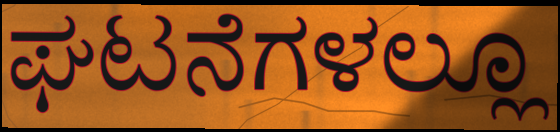
ಘಟನೆಗಳಲ್ಲೂ